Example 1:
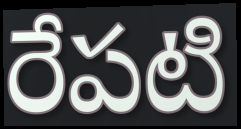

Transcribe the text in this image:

రేపటి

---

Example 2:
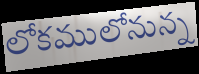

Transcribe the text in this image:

లోకములోనున్న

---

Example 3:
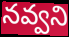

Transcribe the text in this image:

నవ్వని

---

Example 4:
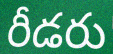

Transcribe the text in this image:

రీడరు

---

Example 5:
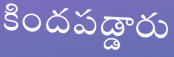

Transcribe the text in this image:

కిందపడ్డారు